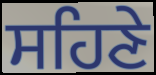
ਸਹਿਣੇ